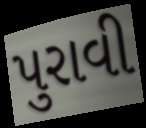
પુરાવી